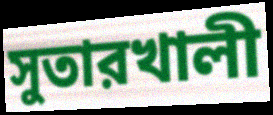
সুতারখালী